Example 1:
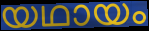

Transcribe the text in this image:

യഥായം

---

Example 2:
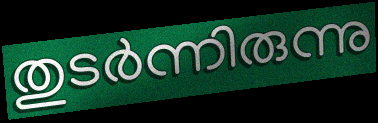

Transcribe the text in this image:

തുടർന്നിരുന്നു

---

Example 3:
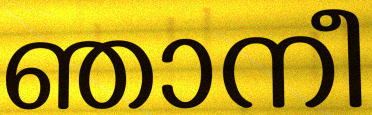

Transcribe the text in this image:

ഞാനീ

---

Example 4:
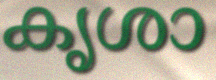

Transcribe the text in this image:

കൃശാ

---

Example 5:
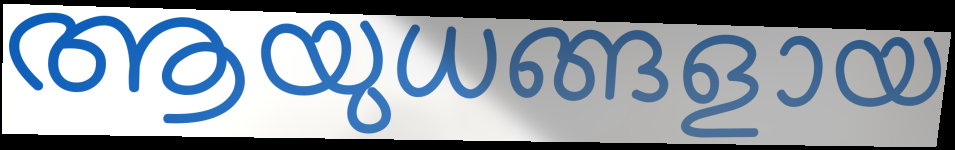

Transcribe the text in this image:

ആയുധങ്ങളായ